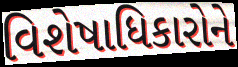
વિશેષાધિકારોને